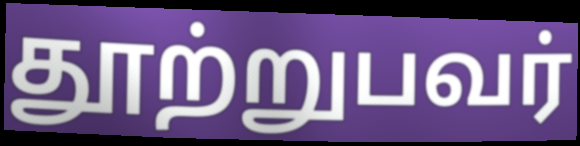
தூற்றுபவர்